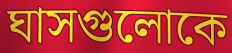
ঘাসগুলোকে